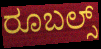
ರೂಬಲ್ಸ್